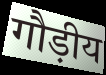
गौड़ीय